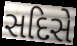
સદિસે